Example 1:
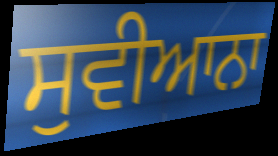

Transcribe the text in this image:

ਸੁਵੀਆਨਾ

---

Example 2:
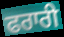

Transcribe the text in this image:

ਫਰਾਰੀ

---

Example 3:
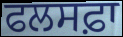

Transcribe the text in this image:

ਫਲਸਫ਼ਾ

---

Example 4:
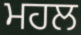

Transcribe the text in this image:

ਮਹਲ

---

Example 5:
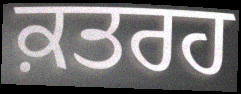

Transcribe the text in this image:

ਕ਼ਤਰਹ